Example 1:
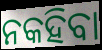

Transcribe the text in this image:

ନକହିବା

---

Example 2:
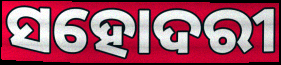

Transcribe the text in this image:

ସହୋଦରୀ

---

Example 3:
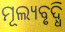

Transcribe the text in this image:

ମୂଲ୍ୟବୃଦ୍ଧି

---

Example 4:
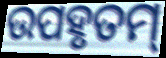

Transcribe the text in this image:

ଉପହୃତମ୍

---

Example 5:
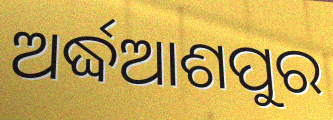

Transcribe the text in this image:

ଅର୍ଦ୍ଧଆଶପୁର